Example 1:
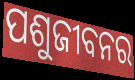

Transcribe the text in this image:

ପଶୁଜୀବନର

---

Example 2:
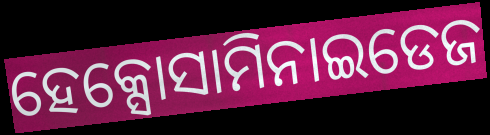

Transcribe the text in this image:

ହେକ୍ସୋସାମିନାଇଡେଜ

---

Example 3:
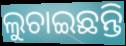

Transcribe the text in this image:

ଲୁଚାଇଛନ୍ତି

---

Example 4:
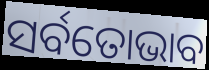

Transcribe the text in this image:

ସର୍ବତୋଭାବ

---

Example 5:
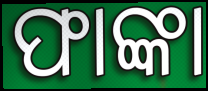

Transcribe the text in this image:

ଫାଙ୍କା